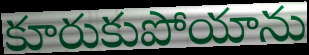
కూరుకుపోయాను